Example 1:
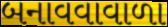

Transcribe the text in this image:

બનાવવાવાળા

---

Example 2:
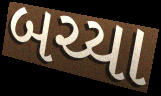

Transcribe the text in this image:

બચ્યા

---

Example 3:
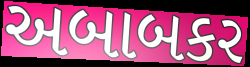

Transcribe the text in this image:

અબાબકર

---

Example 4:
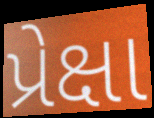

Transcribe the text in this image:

પ્રેક્ષા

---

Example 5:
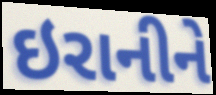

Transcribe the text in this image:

ઇરાનીને